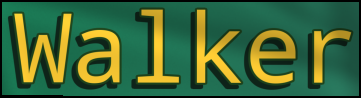
Walker